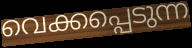
വെക്കപ്പെടുന്ന